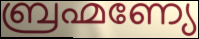
ബ്രഹ്മണ്യേ